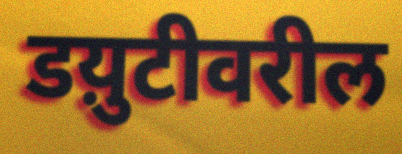
डय़ुटीवरील